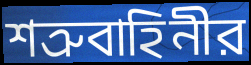
শত্রুবাহিনীর